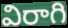
విరాగి